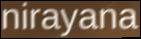
nirayana